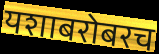
यशाबरोबरच